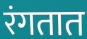
रंगतात